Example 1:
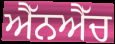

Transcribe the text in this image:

ਐੱਨਐੱਚ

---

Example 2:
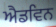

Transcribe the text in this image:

ਐਡਵਿਨ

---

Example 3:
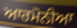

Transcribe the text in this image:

ਆਰਮੋਨੀਆ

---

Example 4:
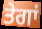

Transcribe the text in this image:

ਤੇਗਾਂ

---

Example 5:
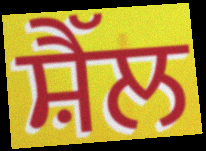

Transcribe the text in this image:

ਸ਼ੈੱਲ